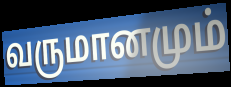
வருமானமும்